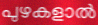
പുഴകളാൽ